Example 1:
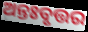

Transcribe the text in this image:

ଅନ୍ତଃବୃତ୍ତର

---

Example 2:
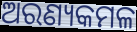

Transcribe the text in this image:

ଅରଣ୍ୟକମଳ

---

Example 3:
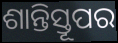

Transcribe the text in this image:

ଶାନ୍ତିସ୍ତୂପର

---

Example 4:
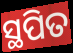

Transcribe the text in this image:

ସ୍ଥପିତ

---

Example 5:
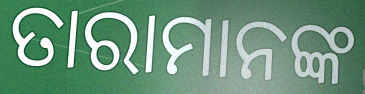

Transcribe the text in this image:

ତାରାମାନଙ୍କ